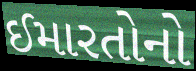
ઈમારતોનો